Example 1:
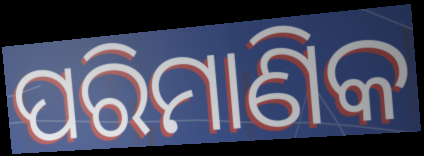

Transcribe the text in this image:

ପରିମାଣିକ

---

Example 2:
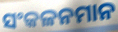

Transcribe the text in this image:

ସଂକଳନମାନ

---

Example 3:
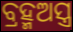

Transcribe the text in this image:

ବ୍ରହ୍ମଅସ୍ତ୍ର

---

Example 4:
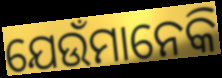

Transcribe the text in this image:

ଯେଉଁମାନେକି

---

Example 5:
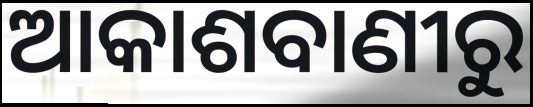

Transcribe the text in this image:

ଆକାଶବାଣୀରୁ